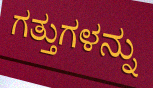
ಗತ್ತುಗಳನ್ನು